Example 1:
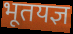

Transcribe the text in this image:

भूतयज्ञ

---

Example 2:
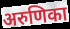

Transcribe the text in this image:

अरुणिका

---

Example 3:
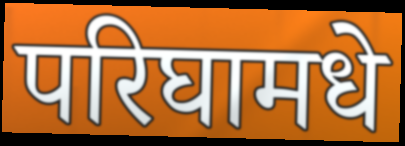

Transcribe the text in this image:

परिघामधे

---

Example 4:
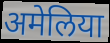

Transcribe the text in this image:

अमेलिया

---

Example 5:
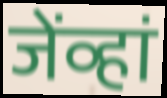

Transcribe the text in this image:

जेंव्हां